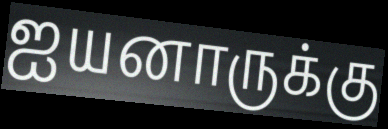
ஐயனாருக்கு